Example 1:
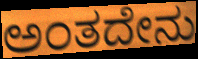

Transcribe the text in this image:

ಅಂತದೇನು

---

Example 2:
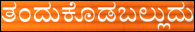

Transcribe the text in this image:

ತಂದುಕೊಡಬಲ್ಲುದು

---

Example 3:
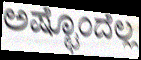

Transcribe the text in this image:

ಅಷ್ಟೊಂದೆಲ್ಲ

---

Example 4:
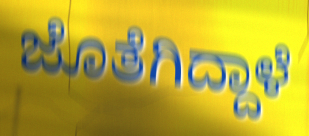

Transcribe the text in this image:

ಜೊತೆಗಿದ್ದಾಳೆ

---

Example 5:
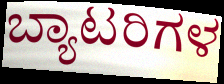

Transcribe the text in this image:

ಬ್ಯಾಟರಿಗಳ